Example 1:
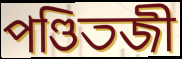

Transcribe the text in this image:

পণ্ডিতজী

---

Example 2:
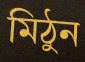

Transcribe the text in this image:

মিঠুন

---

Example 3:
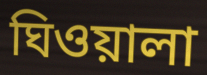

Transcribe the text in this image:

ঘিওয়ালা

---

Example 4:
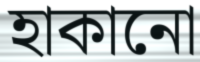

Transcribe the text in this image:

হাকানো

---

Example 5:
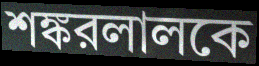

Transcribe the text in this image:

শঙ্করলালকে